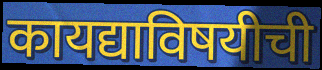
कायद्याविषयीची